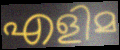
എളിമ